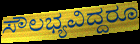
ಸೌಲಭ್ಯವಿದ್ದರೂ